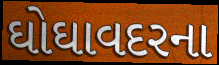
ઘોઘાવદરના